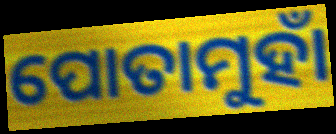
ପୋତାମୁହାଁ